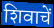
शिवाचें